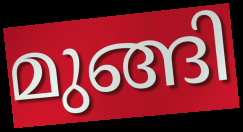
മുങ്ങി